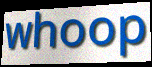
whoop